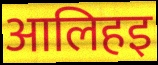
आलिहइ